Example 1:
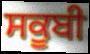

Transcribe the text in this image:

ਸਕੂਬੀ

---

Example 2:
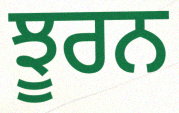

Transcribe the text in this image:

ਝੂਰਨ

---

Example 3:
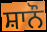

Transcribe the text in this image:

ਸ਼ਾਨੌ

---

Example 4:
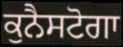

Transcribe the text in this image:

ਕੁਨੈਸਟੋਗਾ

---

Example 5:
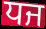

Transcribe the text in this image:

ਧਜ